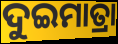
ଦୁଇମାତ୍ରା